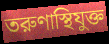
তরুণাস্থিযুক্ত